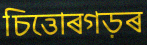
চিত্তোৰগড়ৰ